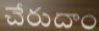
చేరుదాం